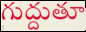
గుద్దుతూ